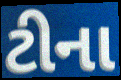
ટીના